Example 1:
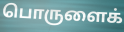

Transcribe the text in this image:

பொருளைக்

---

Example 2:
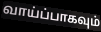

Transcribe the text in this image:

வாய்ப்பாகவும்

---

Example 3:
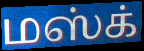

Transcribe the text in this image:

மஸ்க்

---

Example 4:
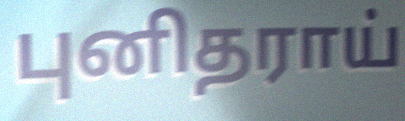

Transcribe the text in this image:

புனிதராய்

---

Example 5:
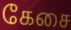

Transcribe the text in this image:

கேசை